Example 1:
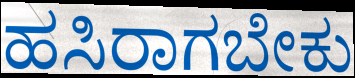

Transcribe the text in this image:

ಹಸಿರಾಗಬೇಕು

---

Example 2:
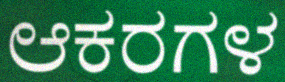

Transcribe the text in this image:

ಆಕರಗಳ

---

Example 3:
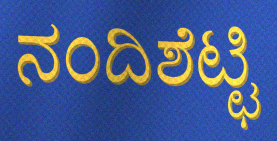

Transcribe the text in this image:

ನಂದಿಶೆಟ್ಟಿ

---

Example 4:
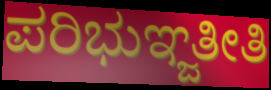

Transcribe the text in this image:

ಪರಿಭುಞ್ಜತೀತಿ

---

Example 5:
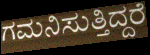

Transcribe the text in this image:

ಗಮನಿಸುತ್ತಿದ್ದರೆ